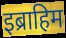
इब्राहिम